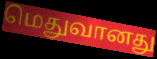
மெதுவானது